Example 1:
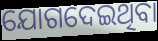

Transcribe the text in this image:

ଯୋଗଦେଇଥିବା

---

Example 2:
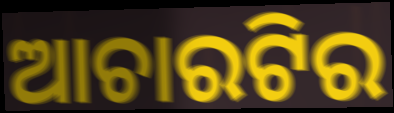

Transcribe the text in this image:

ଆଚାରଟିର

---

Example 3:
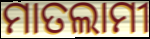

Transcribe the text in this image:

ମାତଲାମୀ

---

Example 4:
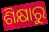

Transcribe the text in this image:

ଶିକ୍ଷାରୁ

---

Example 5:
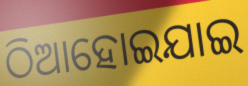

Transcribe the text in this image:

ଠିଆହୋଇଯାଇ